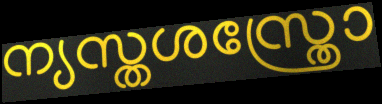
ന്യസ്തശസ്ത്രോ